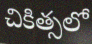
చికిత్సలో